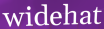
widehat